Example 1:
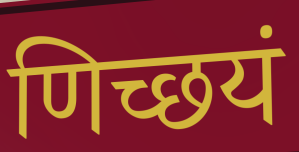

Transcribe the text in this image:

णिच्छयं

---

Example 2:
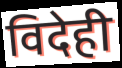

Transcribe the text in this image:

विदेही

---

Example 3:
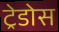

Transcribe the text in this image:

ट्रेडोस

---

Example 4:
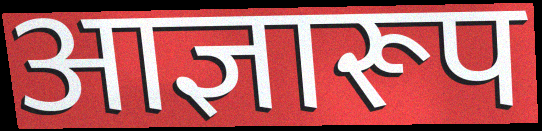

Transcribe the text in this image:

आज्ञारूप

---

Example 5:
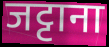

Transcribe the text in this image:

जट्टाना